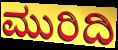
ಮುರಿದಿ